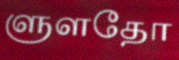
ளுளதோ